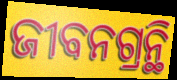
ଜୀବନଗ୍ରନ୍ଥି